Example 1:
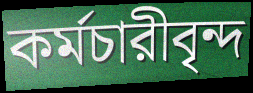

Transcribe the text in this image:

কর্মচারীবৃন্দ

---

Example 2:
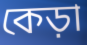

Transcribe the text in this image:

কেড়া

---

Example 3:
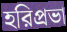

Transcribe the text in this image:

হরিপ্রভা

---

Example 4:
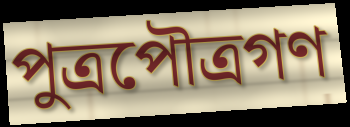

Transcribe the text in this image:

পুত্রপৌত্রগণ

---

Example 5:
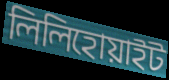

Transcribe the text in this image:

লিলিহোয়াইট